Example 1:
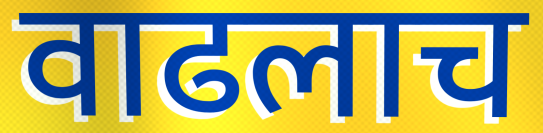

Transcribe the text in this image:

वाढलाच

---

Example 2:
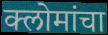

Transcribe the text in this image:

क्लोमांचा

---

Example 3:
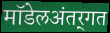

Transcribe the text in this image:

मॉडेलअंतर्गत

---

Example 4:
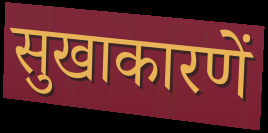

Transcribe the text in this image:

सुखाकारणें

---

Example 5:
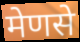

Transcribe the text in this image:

मेणसे